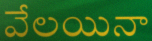
వేలయినా